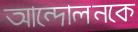
আন্দোলনকে